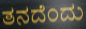
ತನದೆಂದು